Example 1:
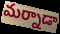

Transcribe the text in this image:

మర్నాడా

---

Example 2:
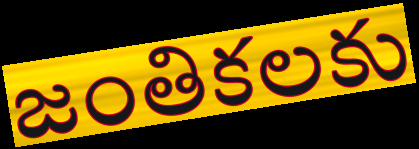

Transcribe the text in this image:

జంతికలకు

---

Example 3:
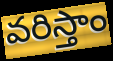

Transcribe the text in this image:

వరిస్తాం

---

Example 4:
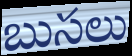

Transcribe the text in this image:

బుసలు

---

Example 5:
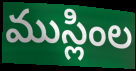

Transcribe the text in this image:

ముస్లింల